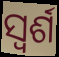
ସ୍ୱର୍ଶ